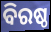
ବିରଷ୍ଠ